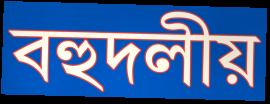
বহুদলীয়